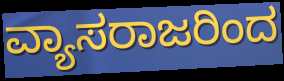
ವ್ಯಾಸರಾಜರಿಂದ